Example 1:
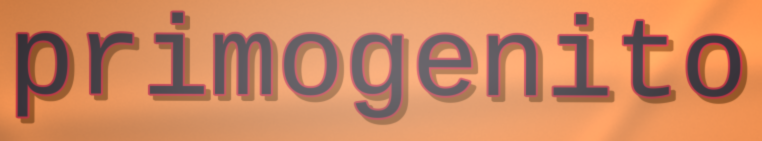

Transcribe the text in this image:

primogenito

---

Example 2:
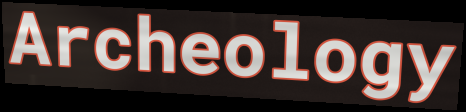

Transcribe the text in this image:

Archeology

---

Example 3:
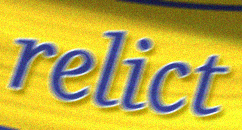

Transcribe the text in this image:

relict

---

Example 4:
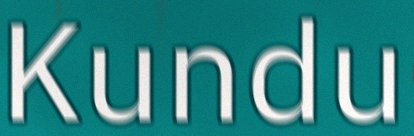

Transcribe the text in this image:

Kundu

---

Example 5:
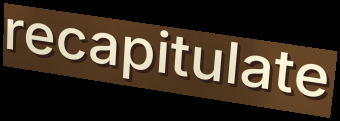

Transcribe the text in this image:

recapitulate